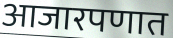
आजारपणात